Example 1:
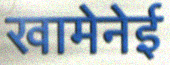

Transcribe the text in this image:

खामेनेई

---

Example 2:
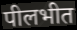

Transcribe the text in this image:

पीलभीत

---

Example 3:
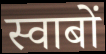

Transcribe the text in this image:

स्वाबों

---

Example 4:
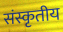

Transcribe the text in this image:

संस्कृतीय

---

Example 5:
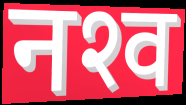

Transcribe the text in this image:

नश्व